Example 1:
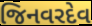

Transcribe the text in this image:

જિનવરદેવ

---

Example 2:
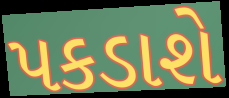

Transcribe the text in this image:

પકડાશે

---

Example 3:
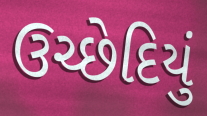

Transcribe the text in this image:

ઉચ્છેદિયું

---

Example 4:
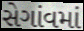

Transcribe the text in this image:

સેગાંવમાં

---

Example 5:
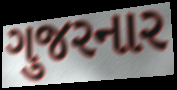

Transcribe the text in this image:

ગુજરનાર